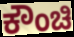
ಕೌಂಚಿ